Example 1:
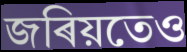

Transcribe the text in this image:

জৰিয়তেও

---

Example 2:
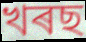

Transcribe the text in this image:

খৰছ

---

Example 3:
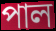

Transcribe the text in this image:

পাল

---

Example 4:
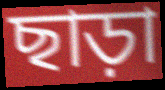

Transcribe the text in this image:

ছাড়া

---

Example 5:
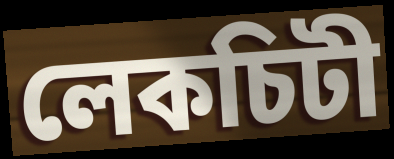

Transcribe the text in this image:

লেকচিটী